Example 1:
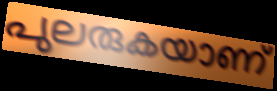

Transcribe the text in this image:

പുലരുകയാണ്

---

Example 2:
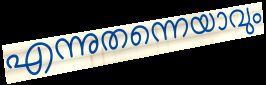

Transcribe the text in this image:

എന്നുതന്നെയാവും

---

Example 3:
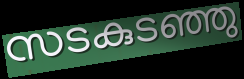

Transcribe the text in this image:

സടകുടഞ്ഞു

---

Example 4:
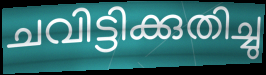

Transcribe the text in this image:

ചവിട്ടിക്കുതിച്ചു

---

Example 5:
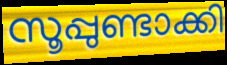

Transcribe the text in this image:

സൂപ്പുണ്ടാക്കി